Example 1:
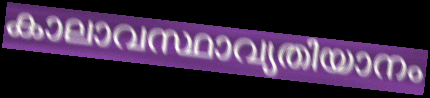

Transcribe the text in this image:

കാലാവസ്ഥാവ്യതിയാനം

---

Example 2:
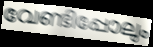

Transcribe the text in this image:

വേണ്ടിപ്പോലും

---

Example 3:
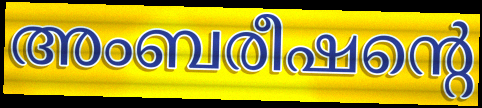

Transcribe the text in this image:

അംബരീഷന്റെ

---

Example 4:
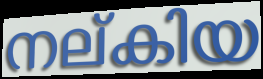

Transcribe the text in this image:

നല്‌കിയ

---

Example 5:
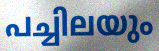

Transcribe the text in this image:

പച്ചിലയും